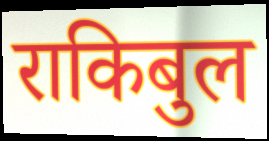
राकिबुल